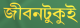
জীবনটুকুই